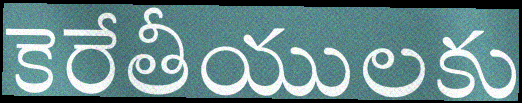
కెరేతీయులకు